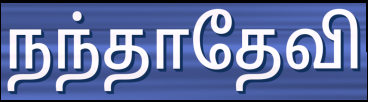
நந்தாதேவி